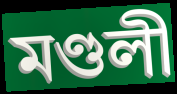
মণ্ডলী